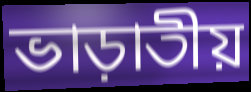
ভাড়াতীয়